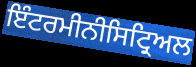
ਇੰਟਰਮੀਨੀਸਿਟ੍ਰਿਅਲ